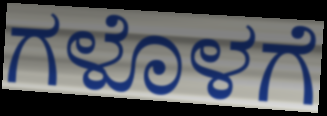
ಗಳೊಳಗೆ